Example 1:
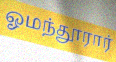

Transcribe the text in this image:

ஓமந்தூரார்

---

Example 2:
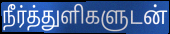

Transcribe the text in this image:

நீர்த்துளிகளுடன்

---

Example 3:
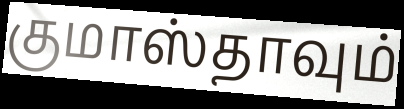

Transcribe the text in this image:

குமாஸ்தாவும்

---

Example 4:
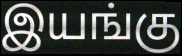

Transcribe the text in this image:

இயங்கு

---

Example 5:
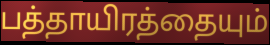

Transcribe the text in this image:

பத்தாயிரத்தையும்